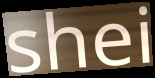
shei